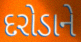
દરોડાને